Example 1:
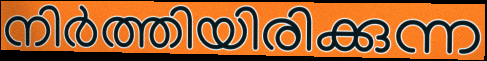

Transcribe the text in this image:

നിർത്തിയിരിക്കുന്ന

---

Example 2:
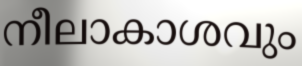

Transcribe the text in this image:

നീലാകാശവും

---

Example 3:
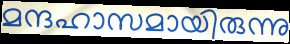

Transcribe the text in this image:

മന്ദഹാസമായിരുന്നു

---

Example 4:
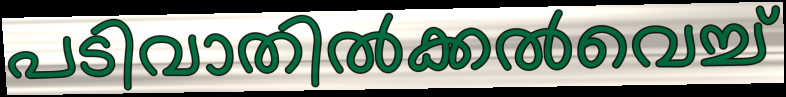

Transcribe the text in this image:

പടിവാതിൽക്കൽവെച്ച്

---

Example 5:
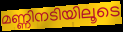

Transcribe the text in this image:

മണ്ണിനടിയിലൂടെ